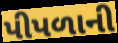
પીપળાની